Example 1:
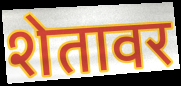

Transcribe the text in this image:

शेतावर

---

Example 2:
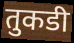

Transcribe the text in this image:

तुकडी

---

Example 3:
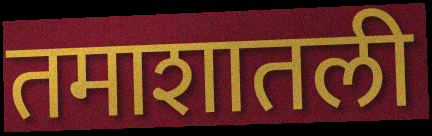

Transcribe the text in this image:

तमाशातली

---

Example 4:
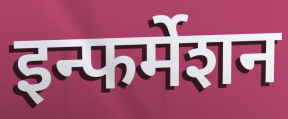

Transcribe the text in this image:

इन्फर्मेशन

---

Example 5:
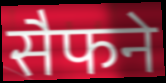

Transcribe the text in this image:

सैफने